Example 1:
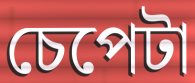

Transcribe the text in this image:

চেপেটা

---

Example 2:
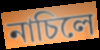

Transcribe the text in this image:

নাচিলে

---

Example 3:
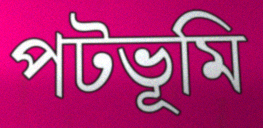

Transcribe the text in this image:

পটভূমি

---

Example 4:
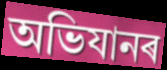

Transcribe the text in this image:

অভিযানৰ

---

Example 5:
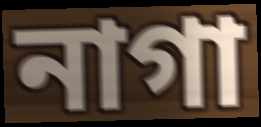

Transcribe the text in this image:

নাগা